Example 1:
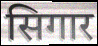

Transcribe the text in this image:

सिगार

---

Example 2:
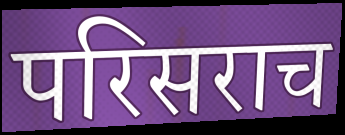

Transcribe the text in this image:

परिसराच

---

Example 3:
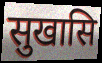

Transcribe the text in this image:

सुखासि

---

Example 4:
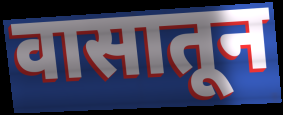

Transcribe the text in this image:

वासातून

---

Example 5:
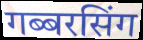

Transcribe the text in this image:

गब्बरसिंग